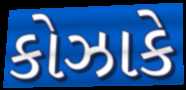
કોઝાકે